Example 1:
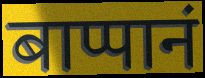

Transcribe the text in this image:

बाप्पानं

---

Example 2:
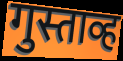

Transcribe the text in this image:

गुस्ताव्ह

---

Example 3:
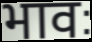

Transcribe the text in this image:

भावः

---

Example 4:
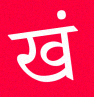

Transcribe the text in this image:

खं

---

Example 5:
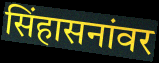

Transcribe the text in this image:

सिंहासनांवर